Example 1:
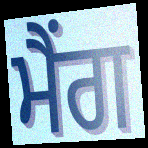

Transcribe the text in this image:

ਮੈਂਗ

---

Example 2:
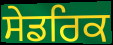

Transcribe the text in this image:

ਸੇਡਰਿਕ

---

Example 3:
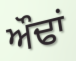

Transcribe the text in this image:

ਔਢਾਂ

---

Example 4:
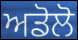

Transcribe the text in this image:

ਅਡੋਲੋ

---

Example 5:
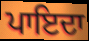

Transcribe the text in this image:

ਪਾਇਦਾ